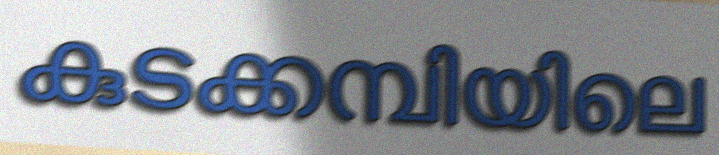
കുടക്കമ്പിയിലെ